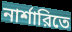
নার্শারিতে